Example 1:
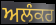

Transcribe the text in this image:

ਅਲੰਕਰ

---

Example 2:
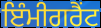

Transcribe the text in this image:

ਇੰਮੀਗਰੈਂਟ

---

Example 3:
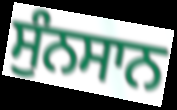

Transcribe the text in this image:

ਸੁੰਨਸਾਨ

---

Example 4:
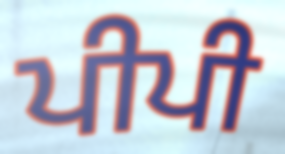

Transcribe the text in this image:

ਪੀਪੀ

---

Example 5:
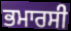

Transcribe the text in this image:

ਭਮਾਰਸੀ